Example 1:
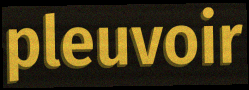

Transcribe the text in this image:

pleuvoir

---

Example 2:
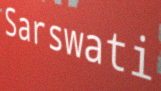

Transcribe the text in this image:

Sarswati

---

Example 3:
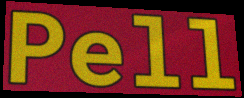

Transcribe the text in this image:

Pell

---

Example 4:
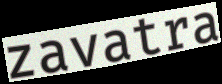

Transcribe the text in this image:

zavatra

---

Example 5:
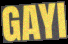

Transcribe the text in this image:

GAYI